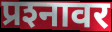
प्रश्‍नावर